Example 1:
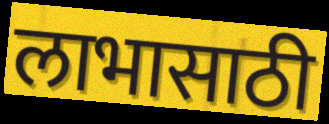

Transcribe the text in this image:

लाभासाठी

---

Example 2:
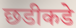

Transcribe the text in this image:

छडीकडे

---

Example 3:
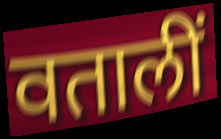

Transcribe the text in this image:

वतालीं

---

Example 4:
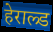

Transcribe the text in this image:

हेराल्ड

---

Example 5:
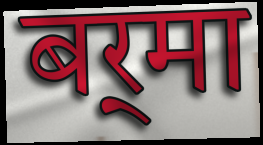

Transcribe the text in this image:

बर्मा